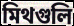
মিথগুলি